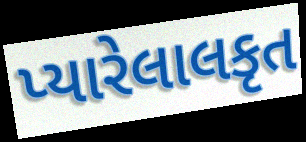
પ્યારેલાલકૃત